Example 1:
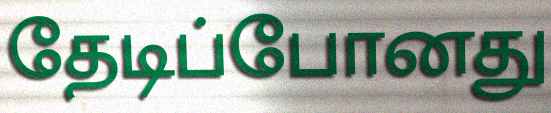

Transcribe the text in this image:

தேடிப்போனது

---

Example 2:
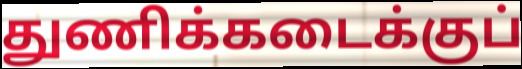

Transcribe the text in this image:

துணிக்கடைக்குப்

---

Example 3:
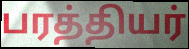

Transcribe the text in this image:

பரத்தியர்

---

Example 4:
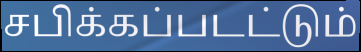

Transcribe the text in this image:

சபிக்கப்படட்டும்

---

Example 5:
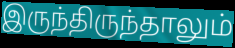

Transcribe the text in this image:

இருந்திருந்தாலும்